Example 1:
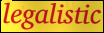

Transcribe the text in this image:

legalistic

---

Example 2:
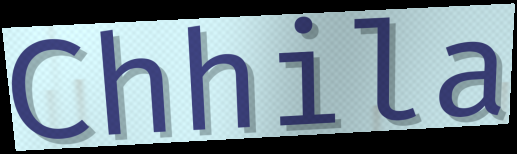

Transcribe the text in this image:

Chhila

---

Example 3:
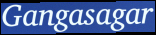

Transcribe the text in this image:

Gangasagar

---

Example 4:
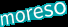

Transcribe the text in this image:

moreso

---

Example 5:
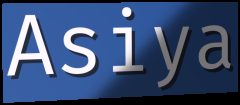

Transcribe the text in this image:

Asiya